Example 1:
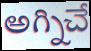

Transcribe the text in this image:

అగ్నిచే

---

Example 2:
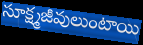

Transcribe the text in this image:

సూక్ష్మజీవులుంటాయి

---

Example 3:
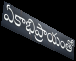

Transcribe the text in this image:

ఏకాభిప్రాయంతో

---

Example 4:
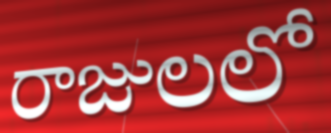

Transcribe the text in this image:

రాజులలో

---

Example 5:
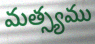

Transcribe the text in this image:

మత్స్యము